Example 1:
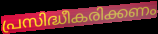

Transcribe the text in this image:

പ്രസിദ്ധീകരിക്കണം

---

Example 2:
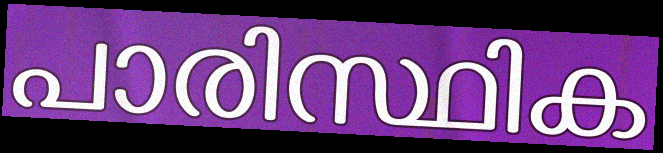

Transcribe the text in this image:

പാരിസ്ഥിക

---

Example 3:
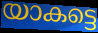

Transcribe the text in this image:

യാകട്ടെ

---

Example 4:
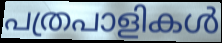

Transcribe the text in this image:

പത്രപാളികൾ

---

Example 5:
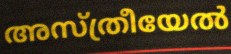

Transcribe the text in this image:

അസ്ത്രീയേൽ